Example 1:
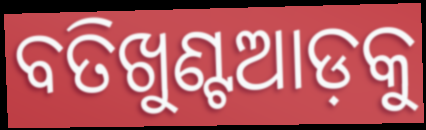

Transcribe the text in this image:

ବତିଖୁଣ୍ଟଆଡ଼କୁ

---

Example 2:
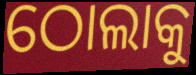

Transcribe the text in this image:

ଠୋଲାକୁ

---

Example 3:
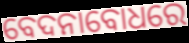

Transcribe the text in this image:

ବେଦନାବୋଧରେ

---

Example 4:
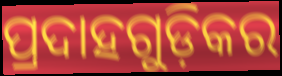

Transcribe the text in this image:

ପ୍ରଦାହଗୁଡ଼ିକର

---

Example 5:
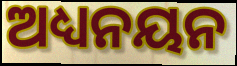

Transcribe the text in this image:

ଅଧ୍ୟନୟନ